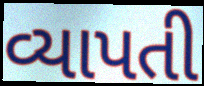
વ્યાપતી